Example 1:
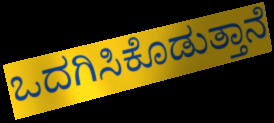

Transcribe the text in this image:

ಒದಗಿಸಿಕೊಡುತ್ತಾನೆ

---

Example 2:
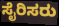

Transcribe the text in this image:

ಸೈರಿಸರು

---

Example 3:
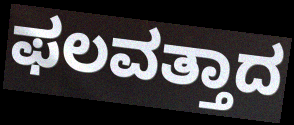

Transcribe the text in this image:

ಫಲವತ್ತಾದ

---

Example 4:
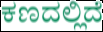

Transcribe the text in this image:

ಕಣದಲ್ಲಿದೆ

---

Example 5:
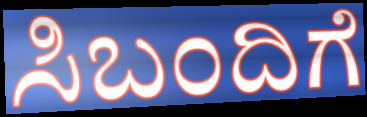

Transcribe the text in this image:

ಸಿಬಂದಿಗೆ